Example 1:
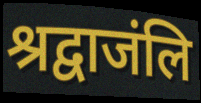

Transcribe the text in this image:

श्रद्वाजंलि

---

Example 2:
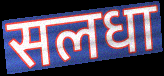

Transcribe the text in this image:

सलधा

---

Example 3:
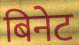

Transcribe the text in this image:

बिनेट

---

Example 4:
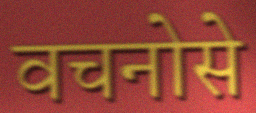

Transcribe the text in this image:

वचनोसे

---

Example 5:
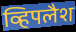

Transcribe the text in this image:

व्हिपलैश